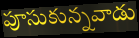
పూసుకున్నవాడు